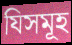
যিসমূহ